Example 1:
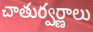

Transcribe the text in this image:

చాతుర్వర్ణాలు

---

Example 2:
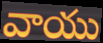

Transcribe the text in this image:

వాయు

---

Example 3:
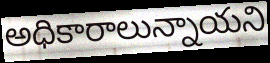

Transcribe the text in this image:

అధికారాలున్నాయని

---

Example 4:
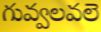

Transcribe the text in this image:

గువ్వలవలె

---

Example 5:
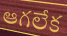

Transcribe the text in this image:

ఆగలేక